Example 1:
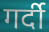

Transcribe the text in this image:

गर्दी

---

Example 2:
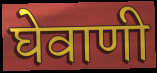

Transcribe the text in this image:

घेवाणी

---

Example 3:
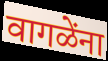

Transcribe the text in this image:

वागळेंना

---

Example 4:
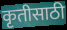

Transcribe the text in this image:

कृतीसाठी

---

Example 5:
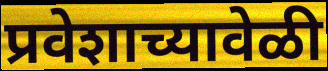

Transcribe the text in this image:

प्रवेशाच्यावेळी